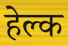
हेल्क